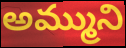
అమ్ముని